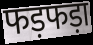
फड़फड़ा